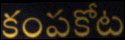
కంపకోట